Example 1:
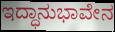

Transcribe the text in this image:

ಇದ್ಧಾನುಭಾವೇನ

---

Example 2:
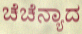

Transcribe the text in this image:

ಚೆಚೆನ್ಯಾದ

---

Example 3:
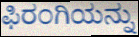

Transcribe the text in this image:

ಫಿರಂಗಿಯನ್ನು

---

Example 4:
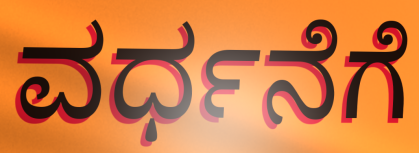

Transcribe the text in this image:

ವರ್ಧನೆಗೆ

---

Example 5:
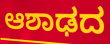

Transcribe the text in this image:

ಆಶಾಢದ